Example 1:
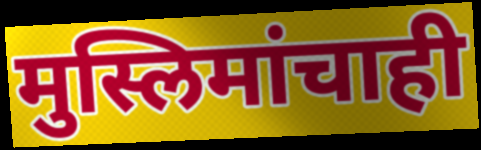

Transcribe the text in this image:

मुस्लिमांचाही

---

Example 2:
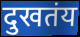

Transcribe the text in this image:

दुखतंय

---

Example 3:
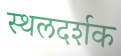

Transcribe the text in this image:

स्थलदर्शक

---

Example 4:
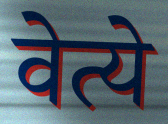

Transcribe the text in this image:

वेत्ये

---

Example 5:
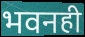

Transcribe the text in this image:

भवनही